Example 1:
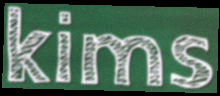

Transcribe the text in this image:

kims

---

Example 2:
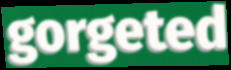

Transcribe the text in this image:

gorgeted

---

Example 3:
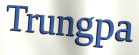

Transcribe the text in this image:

Trungpa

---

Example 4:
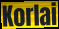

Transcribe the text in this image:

Korlai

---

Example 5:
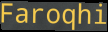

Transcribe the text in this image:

Faroqhi